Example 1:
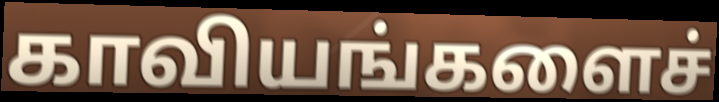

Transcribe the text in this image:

காவியங்களைச்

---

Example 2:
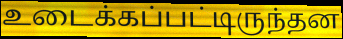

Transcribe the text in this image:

உடைக்கப்பட்டிருந்தன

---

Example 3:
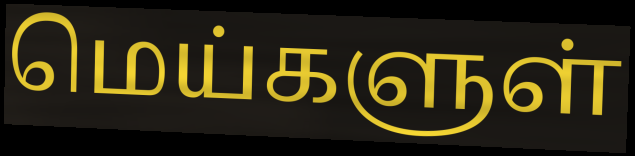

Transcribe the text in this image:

மெய்களுள்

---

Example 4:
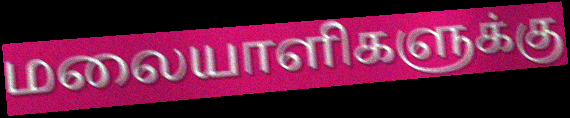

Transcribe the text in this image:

மலையாளிகளுக்கு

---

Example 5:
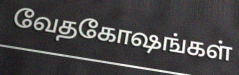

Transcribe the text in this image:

வேதகோஷங்கள்